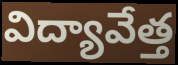
విద్యావేత్త